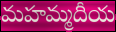
మహమ్మదీయ